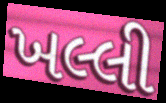
ખલ્લી